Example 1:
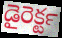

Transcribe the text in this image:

డైరెక్టర్‍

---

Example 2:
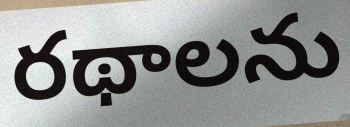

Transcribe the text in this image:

రథాలను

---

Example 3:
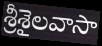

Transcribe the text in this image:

శ్రీశైలవాసా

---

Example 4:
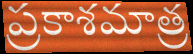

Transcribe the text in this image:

ప్రకాశమాత్ర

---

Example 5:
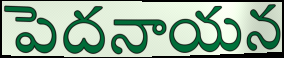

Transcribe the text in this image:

పెదనాయన